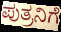
ಪುತ್ರನಿಗೆ